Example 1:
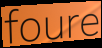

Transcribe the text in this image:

foure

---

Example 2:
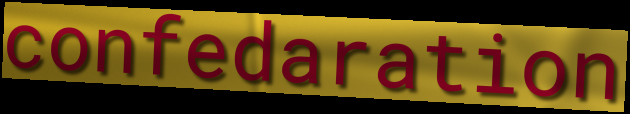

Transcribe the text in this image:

confedaration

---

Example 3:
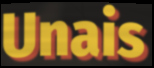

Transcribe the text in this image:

Unais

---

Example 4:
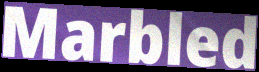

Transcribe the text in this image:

Marbled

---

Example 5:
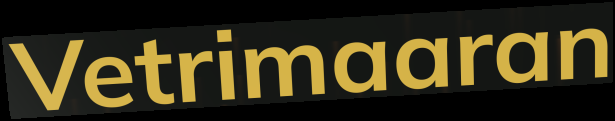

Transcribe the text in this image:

Vetrimaaran